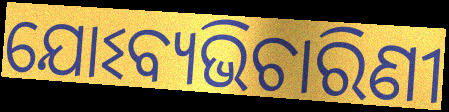
ଯୋଽବ୍ୟଭିଚାରିଣୀ